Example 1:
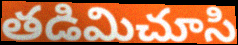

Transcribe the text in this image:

తడిమిచూసి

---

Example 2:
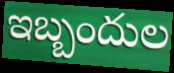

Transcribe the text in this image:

ఇబ్బందుల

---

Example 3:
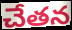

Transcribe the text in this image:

చేతన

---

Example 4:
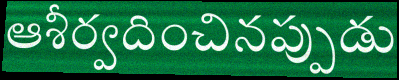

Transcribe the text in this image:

ఆశీర్వదించినప్పుడు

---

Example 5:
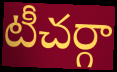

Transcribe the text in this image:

టీచర్గా